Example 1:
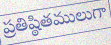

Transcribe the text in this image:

ప్రతిష్ఠితములుగా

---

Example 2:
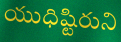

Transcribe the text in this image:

యుధిష్టిరుని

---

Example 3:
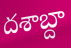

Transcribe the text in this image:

దశాబ్దా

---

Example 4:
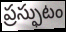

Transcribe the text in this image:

ప్రస్ఫుటం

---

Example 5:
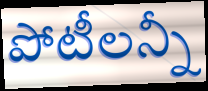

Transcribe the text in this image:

పోటీలన్నీ